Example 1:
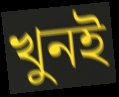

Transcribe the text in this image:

খুনই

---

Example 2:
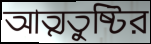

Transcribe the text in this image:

আত্মতুষ্টির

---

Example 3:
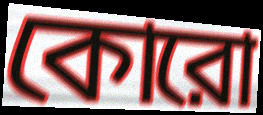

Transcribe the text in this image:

কোরো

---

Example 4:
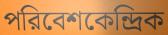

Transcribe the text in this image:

পরিবেশকেন্দ্রিক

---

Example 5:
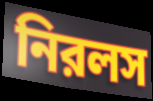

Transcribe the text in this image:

নিরলস